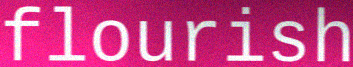
flourish